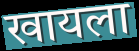
खायला